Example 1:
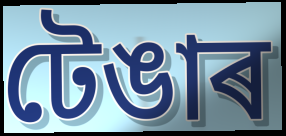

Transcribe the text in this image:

টেঙাৰ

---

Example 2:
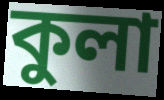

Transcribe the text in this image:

কুলা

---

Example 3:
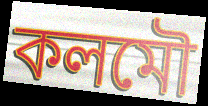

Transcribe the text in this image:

কলমৌ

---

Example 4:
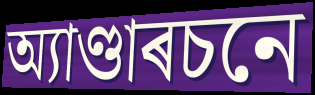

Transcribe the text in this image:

অ্যাণ্ডাৰচনে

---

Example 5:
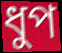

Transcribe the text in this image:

ধুপ